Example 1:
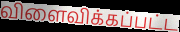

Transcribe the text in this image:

விளைவிக்கப்பட்ட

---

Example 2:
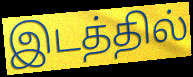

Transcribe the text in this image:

இடத்தில்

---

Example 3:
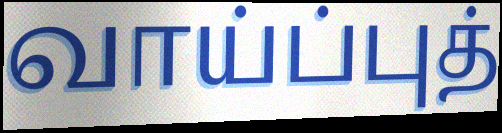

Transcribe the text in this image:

வாய்ப்புத்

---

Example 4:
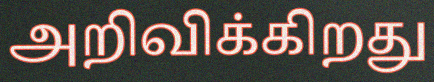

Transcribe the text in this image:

அறிவிக்கிறது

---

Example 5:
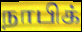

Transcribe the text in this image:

நாபிக்